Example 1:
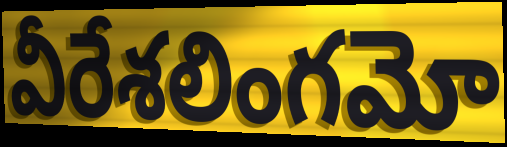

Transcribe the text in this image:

వీరేశలింగమో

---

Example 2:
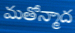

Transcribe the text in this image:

మతోన్మాద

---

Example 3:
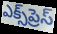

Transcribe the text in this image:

ఎక్స్‌ప్రెస్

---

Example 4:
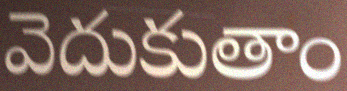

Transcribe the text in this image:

వెదుకుతాం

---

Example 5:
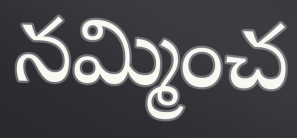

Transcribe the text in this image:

నమ్మించ